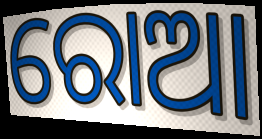
ରୋଆ